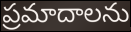
ప్రమాదాలను